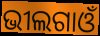
ଭୀଲଗାଓଁ